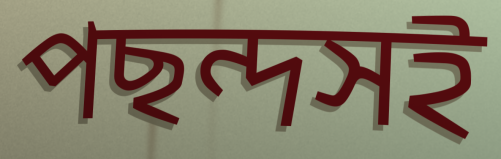
পছন্দসই